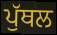
ਪੁੱਥਲ